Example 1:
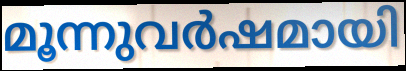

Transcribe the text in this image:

മൂന്നുവർഷമായി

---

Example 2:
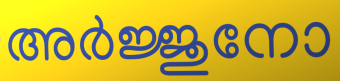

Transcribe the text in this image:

അർജ്ജുനോ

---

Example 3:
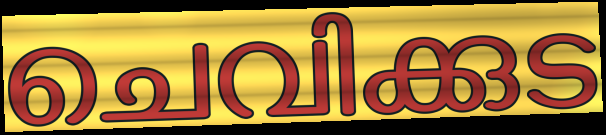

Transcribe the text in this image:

ചെവിക്കുട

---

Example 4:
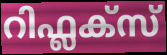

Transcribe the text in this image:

റിഫ്ലക്സ്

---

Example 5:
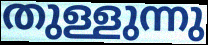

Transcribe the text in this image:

തുള്ളുന്നു